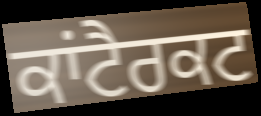
ਕਾਂਟੈਰਕਟ